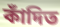
কাঁদিত